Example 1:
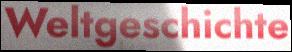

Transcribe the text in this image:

Weltgeschichte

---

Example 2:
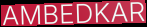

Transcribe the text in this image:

AMBEDKAR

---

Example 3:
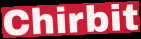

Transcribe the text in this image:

Chirbit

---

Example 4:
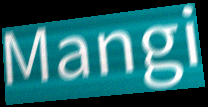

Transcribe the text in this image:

Mangi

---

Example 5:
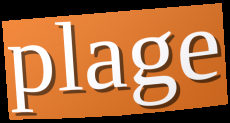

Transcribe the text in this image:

plage